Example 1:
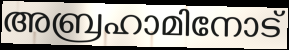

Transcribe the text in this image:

അബ്രഹാമിനോട്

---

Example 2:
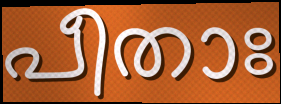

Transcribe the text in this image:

പീതാഃ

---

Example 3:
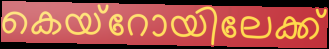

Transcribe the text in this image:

കെയ്റോയിലേക്ക്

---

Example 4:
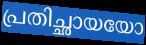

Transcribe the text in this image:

പ്രതിച്ഛായയോ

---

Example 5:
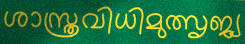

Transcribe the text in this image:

ശാസ്ത്രവിധിമുത്സൃജ്യ